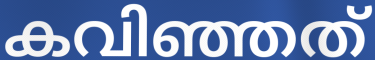
കവിഞ്ഞത്